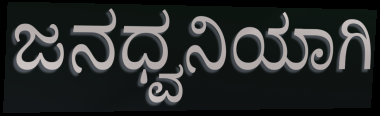
ಜನಧ್ವನಿಯಾಗಿ